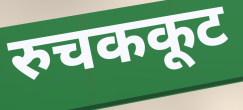
रुचककूट